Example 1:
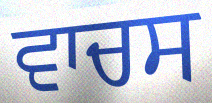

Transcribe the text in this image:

ਵਾਚਸ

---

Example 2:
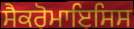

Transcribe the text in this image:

ਸੈਕਰੋਮਾਇਸਿਸ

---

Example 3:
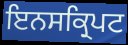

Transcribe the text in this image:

ਇਨਸਕ੍ਰਿਪਟ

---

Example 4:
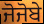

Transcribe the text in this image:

ਜੋਜੋਬੇ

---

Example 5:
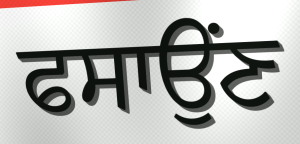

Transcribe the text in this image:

ਫਸਾਉਂਣ